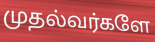
முதல்வர்களே